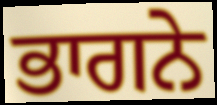
ਭਾਗਨੇ